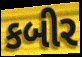
કબીર